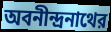
অবনীন্দ্রনাথের